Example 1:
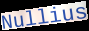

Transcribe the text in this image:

Nullius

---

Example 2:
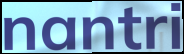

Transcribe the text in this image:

nantri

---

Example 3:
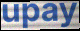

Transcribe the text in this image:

upay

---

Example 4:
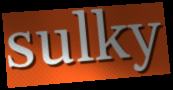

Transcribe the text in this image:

sulky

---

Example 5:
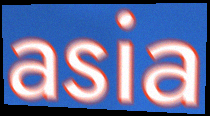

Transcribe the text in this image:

asia